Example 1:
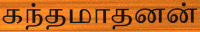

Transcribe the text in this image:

கந்தமாதனன்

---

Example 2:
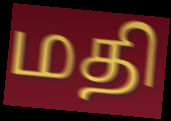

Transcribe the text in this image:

மதி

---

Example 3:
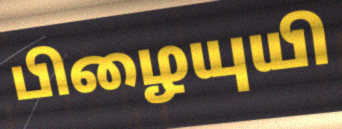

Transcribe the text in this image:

பிழையுயி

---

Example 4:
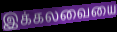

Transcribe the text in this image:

இக்கலவையை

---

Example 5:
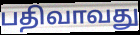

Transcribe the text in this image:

பதிவாவது